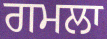
ਗਮਲਾ